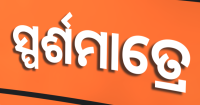
ସ୍ପର୍ଶମାତ୍ରେ